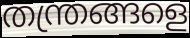
തന്ത്രങ്ങളെ